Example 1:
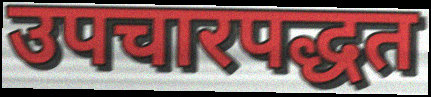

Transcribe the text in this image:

उपचारपद्धत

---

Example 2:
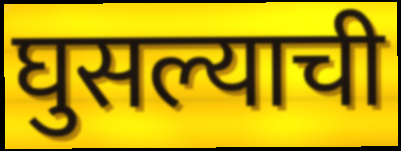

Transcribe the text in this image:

घुसल्याची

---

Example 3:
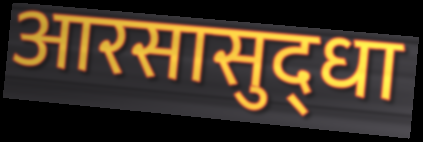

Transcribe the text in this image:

आरसासुद्धा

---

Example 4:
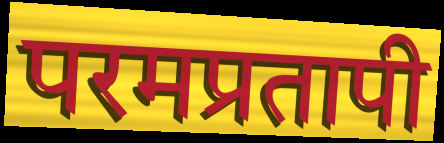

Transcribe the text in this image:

परमप्रतापी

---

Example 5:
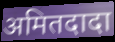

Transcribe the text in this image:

अमितदादा